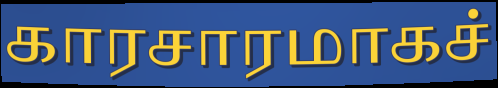
காரசாரமாகச்